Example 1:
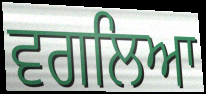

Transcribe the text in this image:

ਵਗਲਿਆ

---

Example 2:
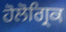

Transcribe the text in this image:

ਹੋਲੋਗ੍ਰਿਕ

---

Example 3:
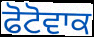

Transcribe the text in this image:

ਫੋਟੋਵਾਕ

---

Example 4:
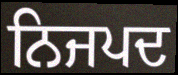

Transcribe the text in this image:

ਨਿਜਪਦ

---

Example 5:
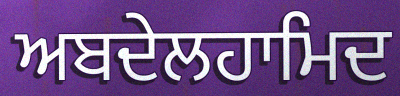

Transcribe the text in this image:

ਅਬਦੇਲਹਾਮਿਦ